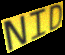
NID